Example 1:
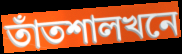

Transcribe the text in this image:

তাঁতশালখনে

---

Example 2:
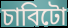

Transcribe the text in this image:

চাবিটো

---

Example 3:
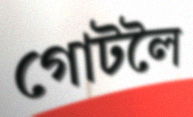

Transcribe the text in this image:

গোটলৈ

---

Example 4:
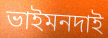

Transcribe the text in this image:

ভাইমনদাই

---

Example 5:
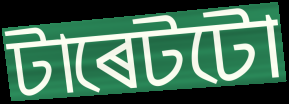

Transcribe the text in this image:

টাৰেটটো